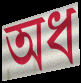
অধ